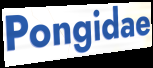
Pongidae